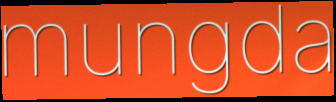
mungda